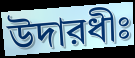
উদারধীঃ